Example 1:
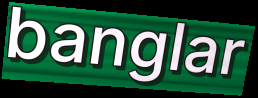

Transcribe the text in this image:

banglar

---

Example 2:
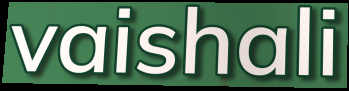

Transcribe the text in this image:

vaishali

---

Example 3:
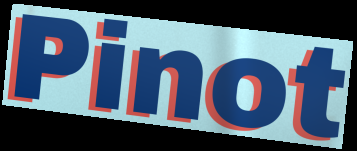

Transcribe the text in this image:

Pinot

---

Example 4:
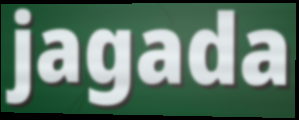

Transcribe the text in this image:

jagada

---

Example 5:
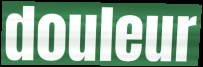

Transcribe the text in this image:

douleur